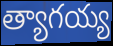
త్యాగయ్య